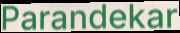
Parandekar